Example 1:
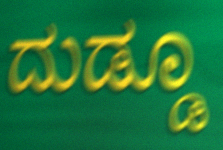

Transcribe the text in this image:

ದುಡ್ಡೂ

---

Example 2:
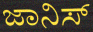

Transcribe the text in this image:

ಜಾನಿಸ್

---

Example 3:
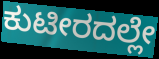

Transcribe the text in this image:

ಕುಟೀರದಲ್ಲೇ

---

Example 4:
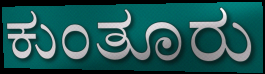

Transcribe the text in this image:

ಕುಂತೂರು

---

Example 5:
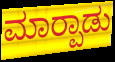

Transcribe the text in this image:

ಮಾರ‍್ಪಾಡು